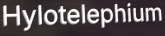
Hylotelephium